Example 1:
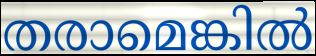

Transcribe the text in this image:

തരാമെങ്കിൽ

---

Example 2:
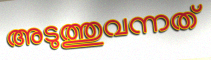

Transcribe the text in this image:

അടുത്തുവന്നത്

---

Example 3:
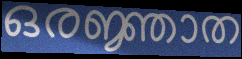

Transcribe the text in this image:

ഒരജ്ഞാത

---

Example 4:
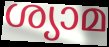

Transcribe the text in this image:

ശ്യാമ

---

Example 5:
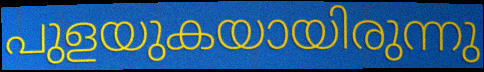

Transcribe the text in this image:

പുളയുകയായിരുന്നു